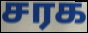
சரக